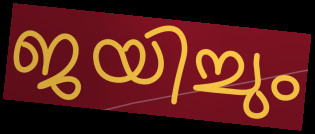
ജയിച്ചും